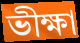
ভীক্ষা